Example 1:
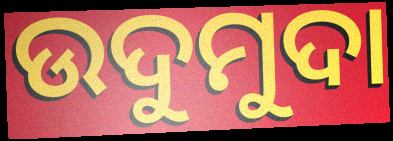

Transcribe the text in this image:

ଉଦୁମୁଦା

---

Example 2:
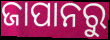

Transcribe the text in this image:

ଜାପାନରୁ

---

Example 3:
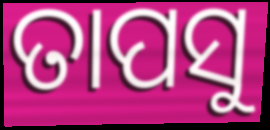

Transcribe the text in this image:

ତାପସୁ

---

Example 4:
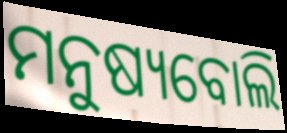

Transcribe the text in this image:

ମନୁଷ୍ୟବୋଲି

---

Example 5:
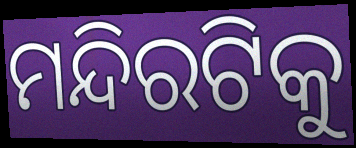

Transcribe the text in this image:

ମନ୍ଦିରଟିକୁ